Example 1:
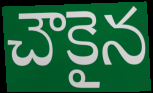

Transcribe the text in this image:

చౌకైన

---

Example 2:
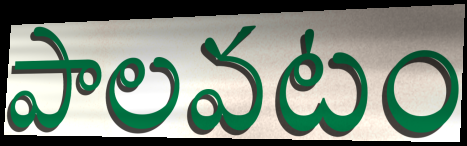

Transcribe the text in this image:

పాలవటం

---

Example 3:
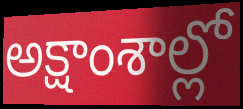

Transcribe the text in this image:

అక్షాంశాల్లో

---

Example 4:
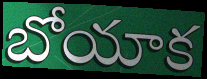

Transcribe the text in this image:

బోయాక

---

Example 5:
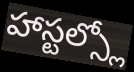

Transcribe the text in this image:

హాస్టల్స్లో